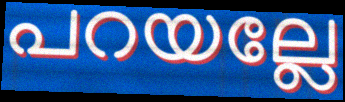
പറയല്ലേ